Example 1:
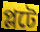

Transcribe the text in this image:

প্লটে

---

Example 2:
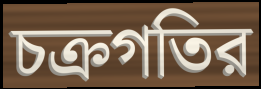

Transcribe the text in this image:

চক্রগতির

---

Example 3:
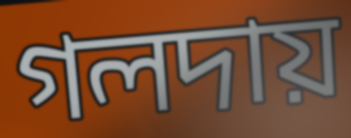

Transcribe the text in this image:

গলদায়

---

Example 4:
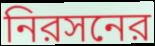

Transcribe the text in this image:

নিরসনের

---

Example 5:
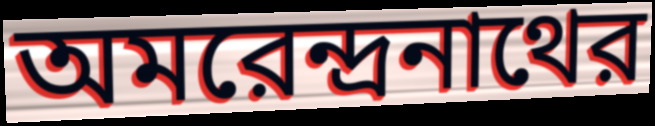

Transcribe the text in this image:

অমরেন্দ্রনাথের